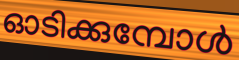
ഓടിക്കുമ്പോൾ